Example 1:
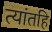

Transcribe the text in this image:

त्यांतहि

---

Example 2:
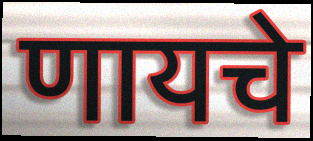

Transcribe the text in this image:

णायचे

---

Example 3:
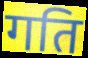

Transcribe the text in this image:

गति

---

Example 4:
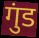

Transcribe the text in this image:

गुंड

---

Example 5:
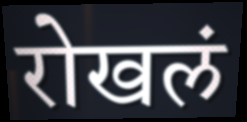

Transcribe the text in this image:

रोखलं